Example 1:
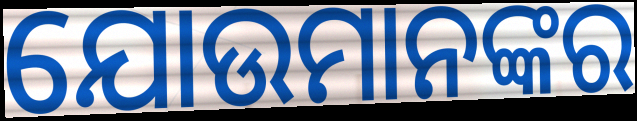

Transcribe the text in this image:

ଯୋଉମାନଙ୍କର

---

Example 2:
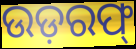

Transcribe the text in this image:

ଉଡ଼ରଫ୍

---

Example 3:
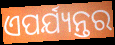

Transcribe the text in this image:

ଏପର୍ଯ୍ୟନ୍ତର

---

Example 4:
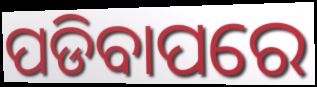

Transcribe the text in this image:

ପଡିବାପରେ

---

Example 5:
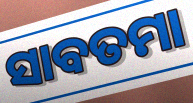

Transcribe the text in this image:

ସାବତମା